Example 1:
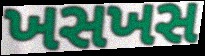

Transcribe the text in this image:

ખસખસ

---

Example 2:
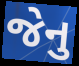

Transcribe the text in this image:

જેનુ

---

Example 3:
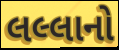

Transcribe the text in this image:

લલ્લાનો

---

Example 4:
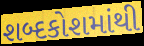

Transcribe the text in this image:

શબ્દકોશમાંથી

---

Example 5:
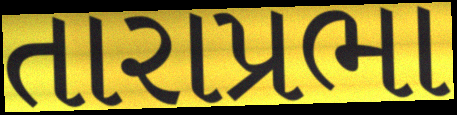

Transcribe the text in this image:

તારાપ્રભા